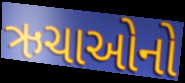
ઋચાઓનો